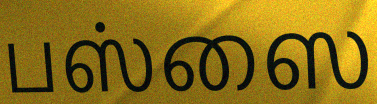
பஸ்ஸை